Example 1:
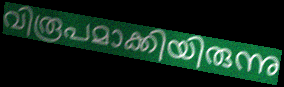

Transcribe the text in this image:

വിരൂപമാക്കിയിരുന്നു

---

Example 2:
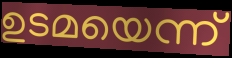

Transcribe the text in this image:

ഉടമയെന്ന്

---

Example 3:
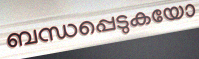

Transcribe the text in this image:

ബന്ധപ്പെടുകയോ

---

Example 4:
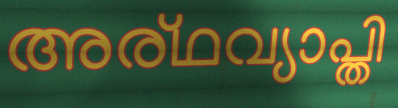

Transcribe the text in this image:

അര്ഥവ്യാപ്തി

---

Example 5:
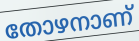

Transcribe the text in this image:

തോഴനാണ്